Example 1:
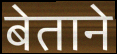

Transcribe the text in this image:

बेताने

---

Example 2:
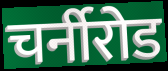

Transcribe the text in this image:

चर्नीरोड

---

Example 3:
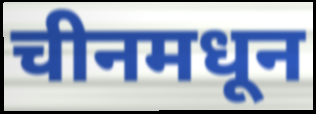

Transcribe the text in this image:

चीनमधून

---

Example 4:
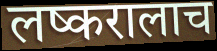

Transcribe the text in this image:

लष्करालाच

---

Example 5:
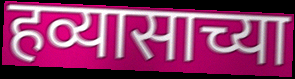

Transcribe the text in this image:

हव्यासाच्या